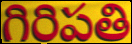
గిరిపతి